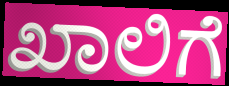
ಖಾಲಿಗೆ